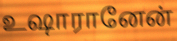
உஷாரானேன்